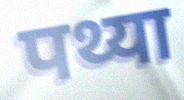
पथ्या